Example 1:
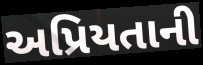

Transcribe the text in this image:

અપ્રિયતાની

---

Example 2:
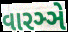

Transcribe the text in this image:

વારઞ્ઞે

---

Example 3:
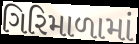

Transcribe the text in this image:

ગિરિમાળામાં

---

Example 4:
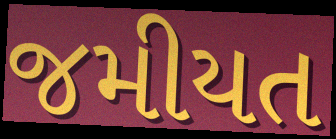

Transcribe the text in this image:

જમીયત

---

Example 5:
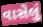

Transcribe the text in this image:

વાસેલું